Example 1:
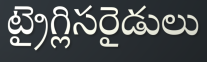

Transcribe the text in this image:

ట్రైగ్లిసరైడులు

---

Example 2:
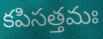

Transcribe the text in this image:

కపిసత్తమః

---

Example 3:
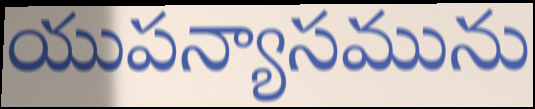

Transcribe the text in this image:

యుపన్యాసమును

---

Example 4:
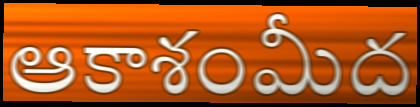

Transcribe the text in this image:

ఆకాశంమీద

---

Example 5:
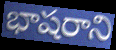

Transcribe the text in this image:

భాషరాని